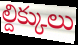
ల్దిక్కులు